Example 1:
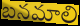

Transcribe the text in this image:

బనమాలి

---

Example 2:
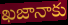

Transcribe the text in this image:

ఖజానాకు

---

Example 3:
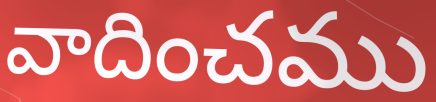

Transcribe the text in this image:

వాదించము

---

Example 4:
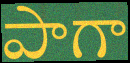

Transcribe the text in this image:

పాగా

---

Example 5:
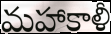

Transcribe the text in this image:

మహాకాళీ